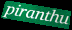
piranthu